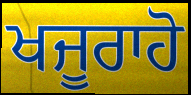
ਖਜੂਰਾਹੋ